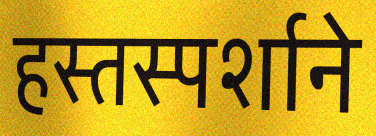
हस्तस्पर्शाने